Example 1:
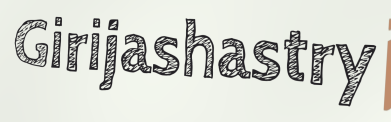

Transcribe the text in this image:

Girijashastry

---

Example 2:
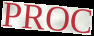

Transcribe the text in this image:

PROC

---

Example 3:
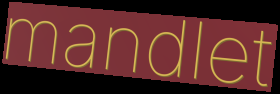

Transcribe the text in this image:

mandlet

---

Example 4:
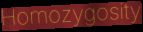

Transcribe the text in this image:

Homozygosity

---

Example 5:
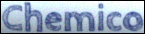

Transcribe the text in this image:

Chemico